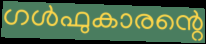
ഗൾഫുകാരന്റെ